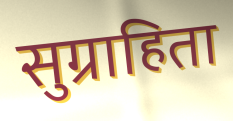
सुग्राहिता